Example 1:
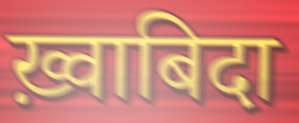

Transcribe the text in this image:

ख़्वाबिदा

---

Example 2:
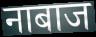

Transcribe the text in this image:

नाबाज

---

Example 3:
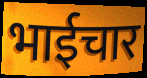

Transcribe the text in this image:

भाईचार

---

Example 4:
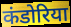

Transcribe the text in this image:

कंडोरिया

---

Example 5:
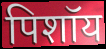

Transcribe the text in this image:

पिशॉय